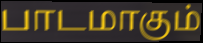
பாடமாகும்